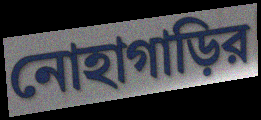
নোহাগাড়ির